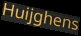
Huijghens